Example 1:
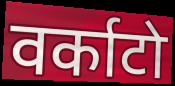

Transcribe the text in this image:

वर्काटो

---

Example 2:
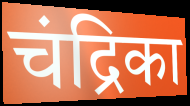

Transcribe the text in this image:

चंद्रिका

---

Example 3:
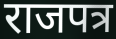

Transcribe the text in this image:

राजपत्र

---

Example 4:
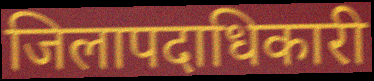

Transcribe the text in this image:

जिलापदाधिकारी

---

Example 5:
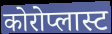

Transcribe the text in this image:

कोरोप्लास्ट